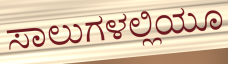
ಸಾಲುಗಳಲ್ಲಿಯೂ